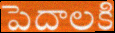
పెదాలకి